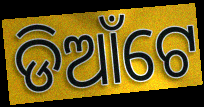
ଡିଆଁଟେ